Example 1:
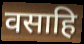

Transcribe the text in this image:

वसाहि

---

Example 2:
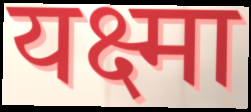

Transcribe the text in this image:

यक्ष्मा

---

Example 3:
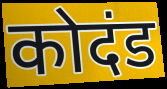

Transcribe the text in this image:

कोदंड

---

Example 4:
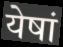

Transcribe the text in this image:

येषां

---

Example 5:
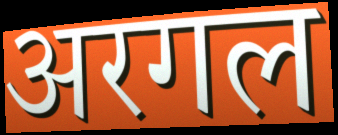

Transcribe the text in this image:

अरगल